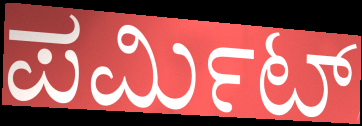
ಪರ್ಮಿಟ್